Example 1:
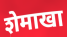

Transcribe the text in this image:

शेमाखा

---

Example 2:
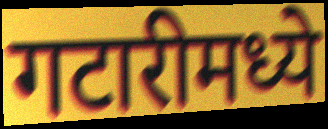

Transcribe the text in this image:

गटारीमध्ये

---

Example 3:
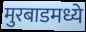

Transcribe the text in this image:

मुरबाडमध्ये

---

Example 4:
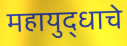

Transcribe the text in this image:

महायुद्धाचे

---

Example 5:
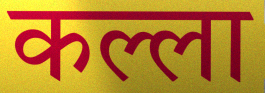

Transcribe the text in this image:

कल्ला